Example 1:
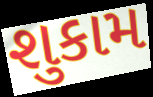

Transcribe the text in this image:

શુકામ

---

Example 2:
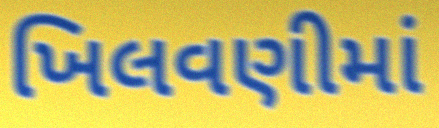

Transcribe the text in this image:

ખિલવણીમાં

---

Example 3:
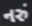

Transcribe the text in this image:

નરું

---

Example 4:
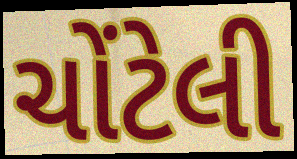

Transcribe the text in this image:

ચોંટેલી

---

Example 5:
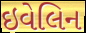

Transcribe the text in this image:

ઇવેલિન